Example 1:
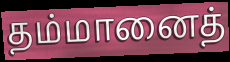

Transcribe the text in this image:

தம்மானைத்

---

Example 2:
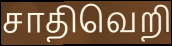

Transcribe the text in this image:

சாதிவெறி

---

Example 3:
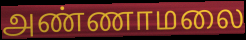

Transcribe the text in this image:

அண்ணாமலை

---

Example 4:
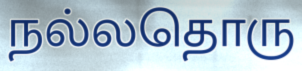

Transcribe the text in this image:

நல்லதொரு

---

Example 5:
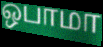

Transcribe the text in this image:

ஒபாமா